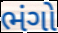
ભંગો